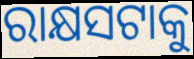
ରାକ୍ଷସଟାକୁ